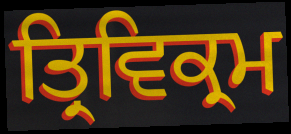
ਤ੍ਰਿਵਿਕ੍ਰਮ